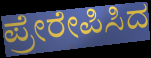
ಪ್ರೇರೇಪಿಸಿದ